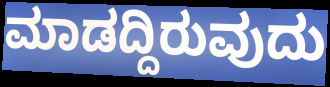
ಮಾಡದ್ದಿರುವುದು